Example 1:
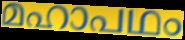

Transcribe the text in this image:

മഹാപഥം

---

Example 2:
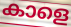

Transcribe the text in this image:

കാളെ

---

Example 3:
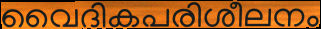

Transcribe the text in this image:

വൈദികപരിശീലനം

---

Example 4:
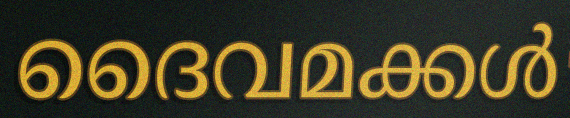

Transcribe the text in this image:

ദൈവമക്കൾ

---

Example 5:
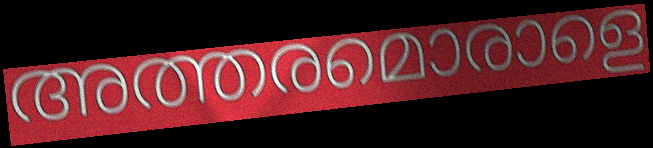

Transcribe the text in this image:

അത്തരമൊരാളെ